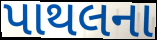
પાથલના